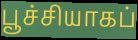
பூச்சியாகப்